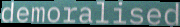
demoralised